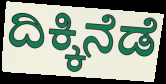
ದಿಕ್ಕಿನೆಡೆ